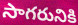
సాగరునికి